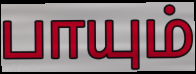
பாயும்